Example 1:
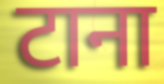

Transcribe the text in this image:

टाना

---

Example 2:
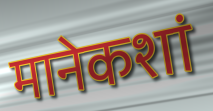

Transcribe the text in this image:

मानेकशां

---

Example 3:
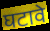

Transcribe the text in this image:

घटावे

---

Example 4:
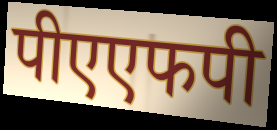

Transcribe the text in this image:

पीएएफपी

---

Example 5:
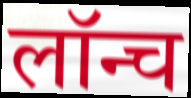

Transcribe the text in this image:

लॉन्च